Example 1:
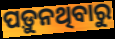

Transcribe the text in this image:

ପଡ଼ୁନଥିବାରୁ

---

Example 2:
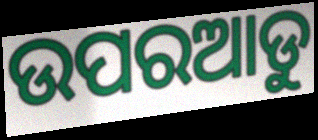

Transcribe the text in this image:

ଉପରଆଡୁ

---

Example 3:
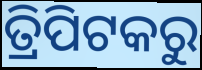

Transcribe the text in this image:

ତ୍ରିପିଟକରୁ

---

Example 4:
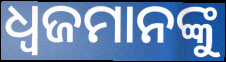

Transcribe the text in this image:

ଧ୍ୱଜମାନଙ୍କୁ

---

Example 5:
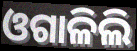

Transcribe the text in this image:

ଓଗାଳିଲି